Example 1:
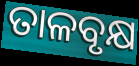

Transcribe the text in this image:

ତାଳବୃକ୍ଷ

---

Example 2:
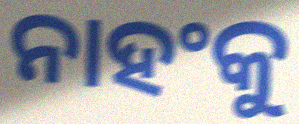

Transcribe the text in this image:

ନାହଂକୁ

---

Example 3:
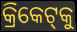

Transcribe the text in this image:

କ୍ରିକେଟ୍‌କୁ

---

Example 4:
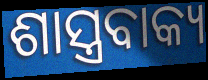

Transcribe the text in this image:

ଶାସ୍ତ୍ରବାକ୍ୟ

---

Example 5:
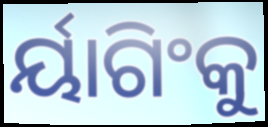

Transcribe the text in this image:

ର୍ୟାଗିଂକୁ